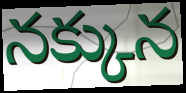
నక్కున